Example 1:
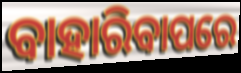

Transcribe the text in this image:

ବାହାରିବାପରେ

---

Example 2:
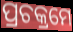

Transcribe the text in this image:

ପ୍ରଚକ୍ରମେ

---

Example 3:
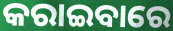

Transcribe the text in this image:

କରାଇବାରେ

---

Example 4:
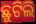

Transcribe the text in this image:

ଛୁଟିଲି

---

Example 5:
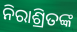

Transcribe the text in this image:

ନିରାଶ୍ରିତଙ୍କ